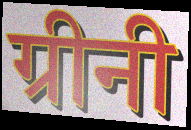
ग्रीनी